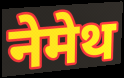
नेमेथ